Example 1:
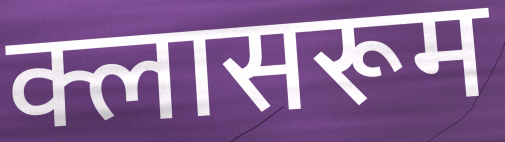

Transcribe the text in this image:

क्लासरूम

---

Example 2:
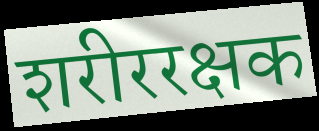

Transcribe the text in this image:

शरीररक्षक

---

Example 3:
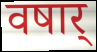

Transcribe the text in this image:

वषार्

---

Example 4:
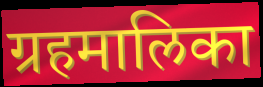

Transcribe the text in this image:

ग्रहमालिका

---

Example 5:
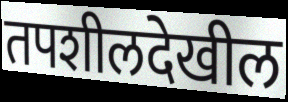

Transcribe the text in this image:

तपशीलदेखील